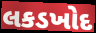
લકડખોદ